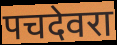
पचदेवरा